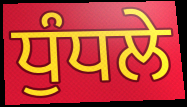
ਧੁੰਧਲੇ